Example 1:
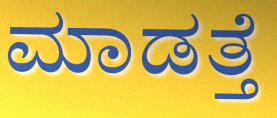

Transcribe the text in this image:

ಮಾಡತ್ತೆ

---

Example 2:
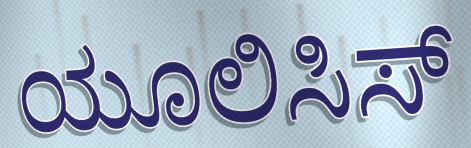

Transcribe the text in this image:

ಯೂಲಿಸಿಸ್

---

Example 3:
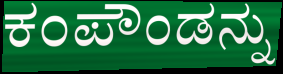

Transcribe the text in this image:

ಕಂಪೌಂಡನ್ನು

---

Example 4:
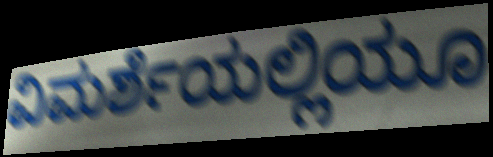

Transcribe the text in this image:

ವಿಮರ್ಶೆಯಲ್ಲಿಯೂ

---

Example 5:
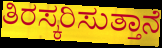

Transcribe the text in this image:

ತಿರಸ್ಕರಿಸುತ್ತಾನೆ